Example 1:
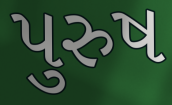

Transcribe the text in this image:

પુરુષ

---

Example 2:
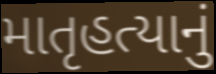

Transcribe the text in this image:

માતૃહત્યાનું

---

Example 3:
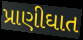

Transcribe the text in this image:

પ્રાણીઘાત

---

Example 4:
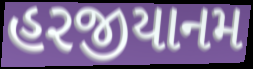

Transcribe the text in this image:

હરજીયાનમ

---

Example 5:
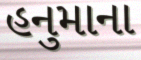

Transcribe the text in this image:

હનુમાના